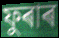
ফুৰাৰ